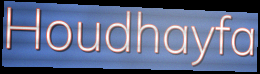
Houdhayfa